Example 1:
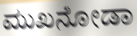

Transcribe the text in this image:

ಮುಖನೋಡಾ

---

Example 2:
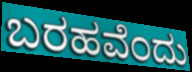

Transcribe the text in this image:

ಬರಹವೆಂದು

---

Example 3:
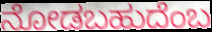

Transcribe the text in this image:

ನೋಡಬಹುದೆಂಬ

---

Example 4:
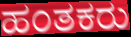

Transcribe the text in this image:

ಹಂತಕರು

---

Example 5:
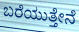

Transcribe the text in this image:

ಬರೆಯುತ್ತೇನೆ